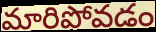
మారిపోవడం